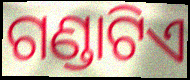
ଗଣ୍ଡାଟିଏ